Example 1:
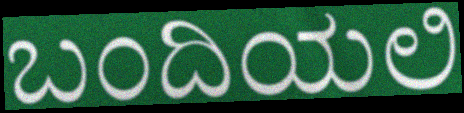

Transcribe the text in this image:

ಬಂದಿಯಲಿ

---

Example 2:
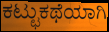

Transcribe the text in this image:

ಕಟ್ಟುಕಥೆಯಾಗಿ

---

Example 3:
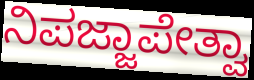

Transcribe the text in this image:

ನಿಪಜ್ಜಾಪೇತ್ವಾ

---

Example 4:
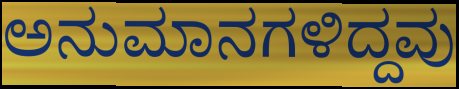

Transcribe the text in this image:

ಅನುಮಾನಗಳಿದ್ದವು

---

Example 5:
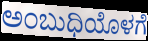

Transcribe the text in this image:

ಅಂಬುಧಿಯೊಳಗೆ